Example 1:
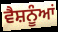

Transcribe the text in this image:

ਵੈਸ਼ਨੂੰਆਂ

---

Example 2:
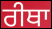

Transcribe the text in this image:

ਰੀਥਾ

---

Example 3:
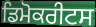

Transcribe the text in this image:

ਡਿਮੋਕਰੀਟਸ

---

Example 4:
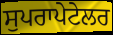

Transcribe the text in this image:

ਸੁਪਰਾਪੇਟੇਲਰ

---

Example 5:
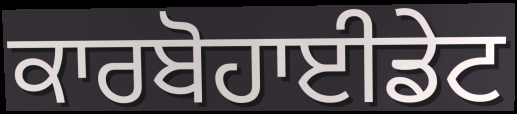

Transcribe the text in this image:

ਕਾਰਬੋਹਾਈਡੇਟ